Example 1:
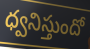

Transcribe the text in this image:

ధ్వనిస్తుందో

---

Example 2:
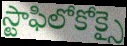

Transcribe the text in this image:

స్టాఫిలోకోక్సై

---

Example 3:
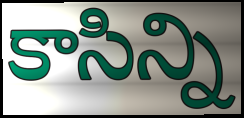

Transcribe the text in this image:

కాసిన్ని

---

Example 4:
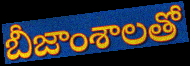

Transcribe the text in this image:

బీజాంశాలతో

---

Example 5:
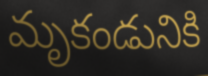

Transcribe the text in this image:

మృకండునికి